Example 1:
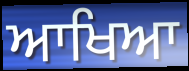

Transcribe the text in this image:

ਆਖਿਆ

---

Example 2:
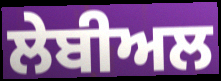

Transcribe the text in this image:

ਲੇਬੀਅਲ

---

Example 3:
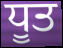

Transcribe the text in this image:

ਧੂਤ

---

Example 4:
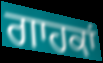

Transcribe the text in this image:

ਗਾਹਕਾਂ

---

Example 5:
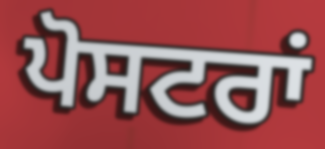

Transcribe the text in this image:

ਪੋਸਟਰਾਂ